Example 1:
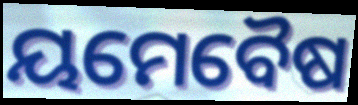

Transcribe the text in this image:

ୟମେବୈଷ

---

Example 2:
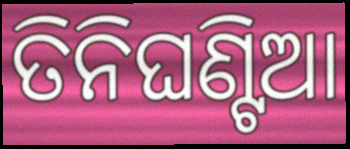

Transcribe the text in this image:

ତିନିଘଣ୍ଟିଆ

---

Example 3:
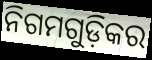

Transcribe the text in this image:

ନିଗମଗୁଡ଼ିକର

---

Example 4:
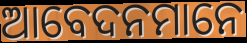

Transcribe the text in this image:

ଆବେଦନମାନେ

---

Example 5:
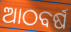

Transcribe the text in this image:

ଆଠବର୍ଷ